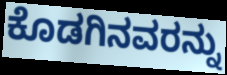
ಕೊಡಗಿನವರನ್ನು